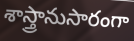
శాస్త్రానుసారంగా